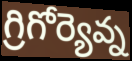
గ్రిగోర్యెవ్న